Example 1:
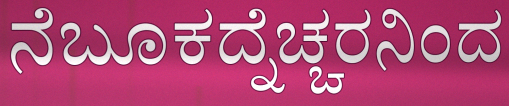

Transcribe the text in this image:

ನೆಬೂಕದ್ನೆಚ್ಚರನಿಂದ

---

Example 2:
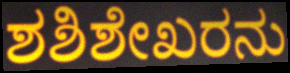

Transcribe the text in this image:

ಶಶಿಶೇಖರನು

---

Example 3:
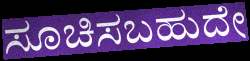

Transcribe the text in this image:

ಸೂಚಿಸಬಹುದೇ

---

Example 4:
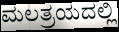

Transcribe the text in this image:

ಮಲತ್ರಯದಲ್ಲಿ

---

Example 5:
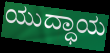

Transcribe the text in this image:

ಯುದ್ಧಾಯ